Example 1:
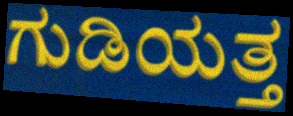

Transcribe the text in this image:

ಗುಡಿಯತ್ತ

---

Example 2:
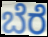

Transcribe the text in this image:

ಬೆರೆ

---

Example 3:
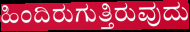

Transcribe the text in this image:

ಹಿಂದಿರುಗುತ್ತಿರುವುದು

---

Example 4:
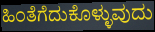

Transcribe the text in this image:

ಹಿಂತೆಗೆದುಕೊಳ್ಳುವುದು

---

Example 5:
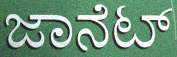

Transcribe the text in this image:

ಜಾನೆಟ್